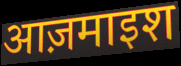
आज़माइश